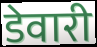
डेवारी